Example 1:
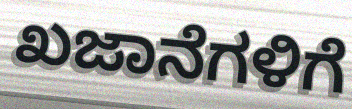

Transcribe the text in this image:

ಖಜಾನೆಗಳಿಗೆ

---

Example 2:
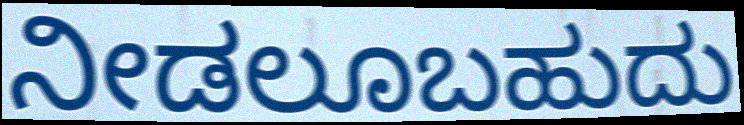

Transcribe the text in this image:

ನೀಡಲೂಬಹುದು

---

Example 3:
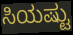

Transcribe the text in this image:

ಸಿಯಷ್ಟು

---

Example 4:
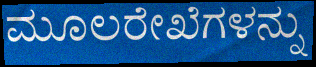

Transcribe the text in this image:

ಮೂಲರೇಖೆಗಳನ್ನು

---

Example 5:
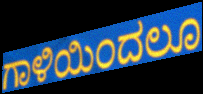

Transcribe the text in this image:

ಗಾಳಿಯಿಂದಲೂ